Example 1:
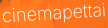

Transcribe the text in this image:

cinemapettai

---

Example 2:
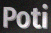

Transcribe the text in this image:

Poti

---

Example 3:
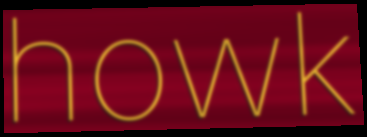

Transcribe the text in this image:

howk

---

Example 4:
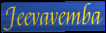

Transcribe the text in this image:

Jeevavemba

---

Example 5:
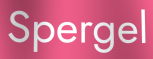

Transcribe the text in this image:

Spergel